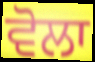
ਵੋਲਾ